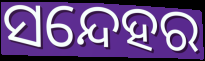
ସନ୍ଦେହର